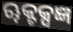
ୠକ୍ଟକ୍ସଜ୍ଞ